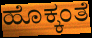
ಹೊಕ್ಕಂತೆ